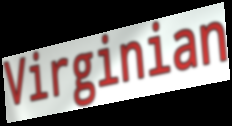
Virginian